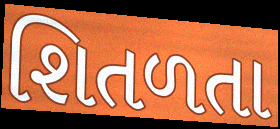
શિતળતા